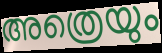
അത്രെയും